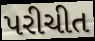
પરીચીત